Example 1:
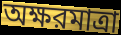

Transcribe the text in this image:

অক্ষরমাত্রা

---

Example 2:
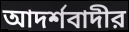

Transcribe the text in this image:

আদর্শবাদীর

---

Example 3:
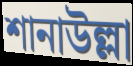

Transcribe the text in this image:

শানাউল্লা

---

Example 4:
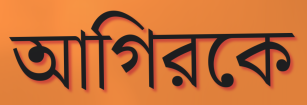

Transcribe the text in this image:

আগিরকে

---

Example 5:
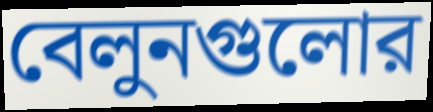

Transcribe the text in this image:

বেলুনগুলোর